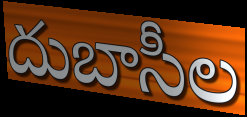
దుబాసీల